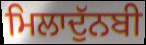
ਮਿਲਾਦੁੱਨਬੀ